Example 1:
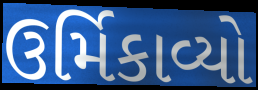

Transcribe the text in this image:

ઉર્મિકાવ્યો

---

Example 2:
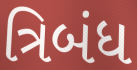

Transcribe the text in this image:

ત્રિબંધ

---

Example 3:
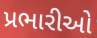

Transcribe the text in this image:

પ્રભારીઓ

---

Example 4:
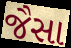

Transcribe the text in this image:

જૈસા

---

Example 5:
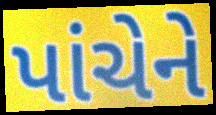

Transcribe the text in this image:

પાંચેને